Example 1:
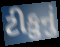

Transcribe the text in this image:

ટીકુનું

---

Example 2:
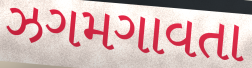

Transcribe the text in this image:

ઝગમગાવતા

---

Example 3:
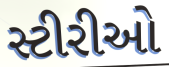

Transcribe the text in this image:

સ્ટીરીઓ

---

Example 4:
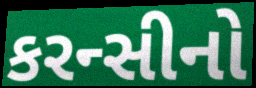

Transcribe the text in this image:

કરન્સીનો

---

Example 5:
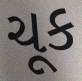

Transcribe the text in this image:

ચૂક